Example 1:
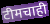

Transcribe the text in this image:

टीमचाही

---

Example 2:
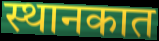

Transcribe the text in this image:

स्थानकात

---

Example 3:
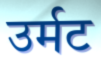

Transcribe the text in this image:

उर्मट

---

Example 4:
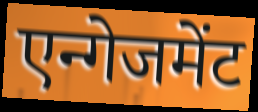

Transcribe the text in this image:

एन्गेजमेंट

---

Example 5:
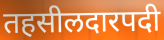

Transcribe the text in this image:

तहसीलदारपदी